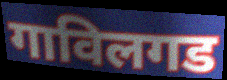
गाविलगड